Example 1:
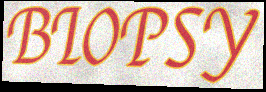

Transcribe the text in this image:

BIOPSY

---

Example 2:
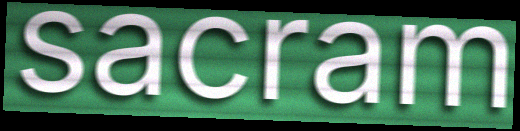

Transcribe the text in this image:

sacram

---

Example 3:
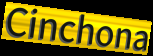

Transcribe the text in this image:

Cinchona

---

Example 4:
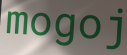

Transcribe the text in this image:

mogoj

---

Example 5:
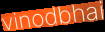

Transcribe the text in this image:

vinodbhai